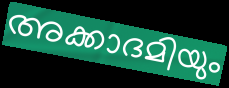
അക്കാദമിയും